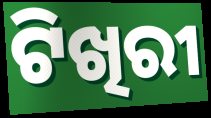
ଟିଖିରୀ